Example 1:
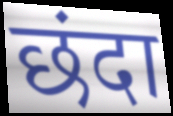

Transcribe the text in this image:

छंदा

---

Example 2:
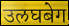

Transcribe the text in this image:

उलघबेग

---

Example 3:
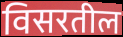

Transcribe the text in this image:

विसरतील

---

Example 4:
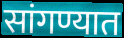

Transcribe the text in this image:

सांगण्यात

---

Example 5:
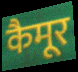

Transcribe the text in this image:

कैमूर